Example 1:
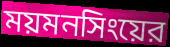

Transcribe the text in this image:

ময়মনসিংয়ের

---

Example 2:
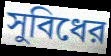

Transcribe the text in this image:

সুবিধের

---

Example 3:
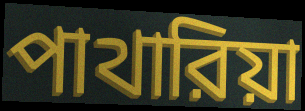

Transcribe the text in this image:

পাথারিয়া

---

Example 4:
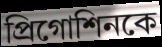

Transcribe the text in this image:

প্রিগোশিনকে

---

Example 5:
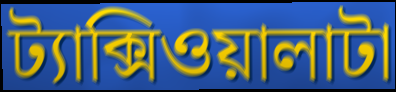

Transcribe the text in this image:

ট্যাক্সিওয়ালাটা